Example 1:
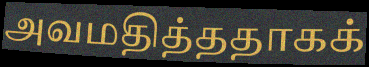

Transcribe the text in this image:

அவமதித்ததாகக்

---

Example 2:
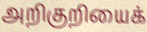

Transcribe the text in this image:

அறிகுறியைக்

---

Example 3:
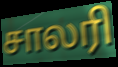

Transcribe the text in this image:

சாலரி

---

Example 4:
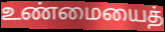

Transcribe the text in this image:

உண்மையைத்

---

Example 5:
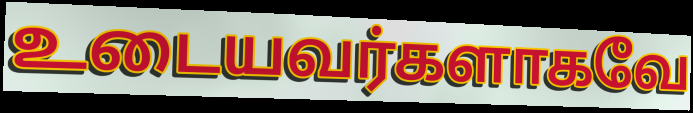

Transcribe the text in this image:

உடையவர்களாகவே